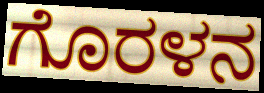
ಗೊರಳನ